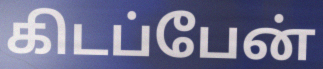
கிடப்பேன்